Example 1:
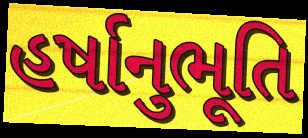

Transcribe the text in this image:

હર્ષાનુભૂતિ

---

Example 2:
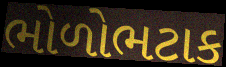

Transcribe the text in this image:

ભોળોભટાક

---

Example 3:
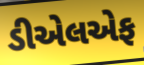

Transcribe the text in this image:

ડીએલએફ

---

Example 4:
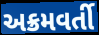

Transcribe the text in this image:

અક્રમવર્તી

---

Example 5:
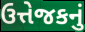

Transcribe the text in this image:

ઉત્તેજકનું